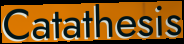
Catathesis